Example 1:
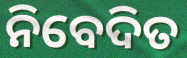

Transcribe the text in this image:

ନିବେଦିତ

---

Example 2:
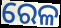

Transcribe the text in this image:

ରେଳ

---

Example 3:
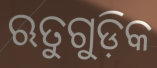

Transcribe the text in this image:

ଋତୁଗୁଡ଼ିକ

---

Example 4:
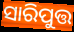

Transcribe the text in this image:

ସାରିପୁତ୍ତ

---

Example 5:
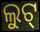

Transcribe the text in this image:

ଲୁଟ୍